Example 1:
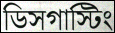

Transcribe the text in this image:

ডিসগাস্টিং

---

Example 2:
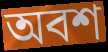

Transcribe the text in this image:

অবশ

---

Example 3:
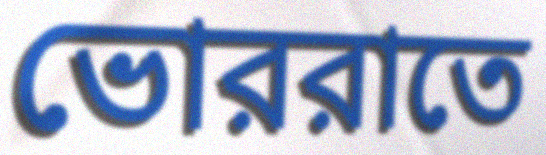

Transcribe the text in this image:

ভোররাতে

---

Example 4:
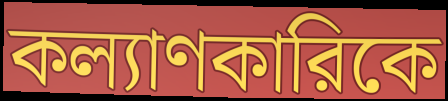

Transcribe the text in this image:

কল্যাণকারিকে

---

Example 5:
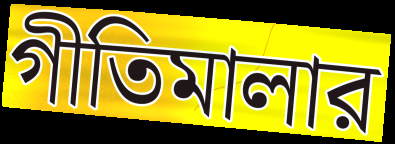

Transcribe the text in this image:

গীতিমালার